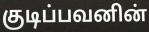
குடிப்பவனின்